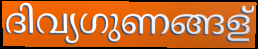
ദിവ്യഗുണങ്ങള്